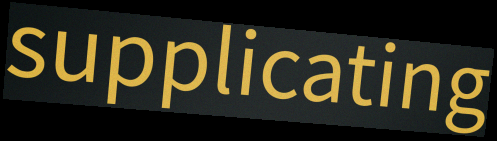
supplicating